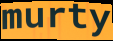
murty